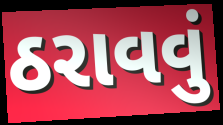
ઠરાવવું